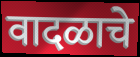
वादळाचे